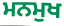
ਮਨਮੁਖ